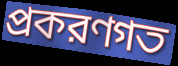
প্রকরণগত